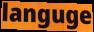
languge